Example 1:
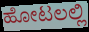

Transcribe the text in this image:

ಹೋಟಲಲ್ಲಿ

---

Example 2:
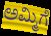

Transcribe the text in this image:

ಅಮ್ಮಿಗೆ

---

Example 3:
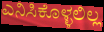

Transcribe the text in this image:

ಎನಿಸಿಕೊಳ್ಳಲಿಲ್ಲ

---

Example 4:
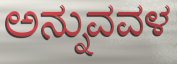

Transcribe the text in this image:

ಅನ್ನುವವಳ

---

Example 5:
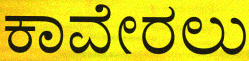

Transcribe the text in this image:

ಕಾವೇರಲು